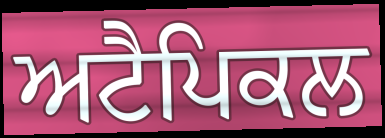
ਅਟੈਪਿਕਲ